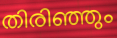
തിരിഞ്ഞും